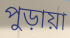
পুড়ায়া